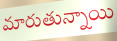
మారుతున్నాయి